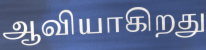
ஆவியாகிறது